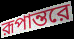
রূপান্তরে